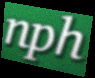
nph